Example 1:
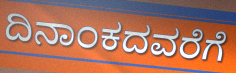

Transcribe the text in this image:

ದಿನಾಂಕದವರೆಗೆ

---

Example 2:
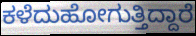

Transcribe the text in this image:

ಕಳೆದುಹೋಗುತ್ತಿದ್ದಾರೆ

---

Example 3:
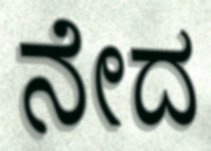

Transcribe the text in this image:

ನೇದ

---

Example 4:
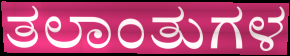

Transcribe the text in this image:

ತಲಾಂತುಗಳ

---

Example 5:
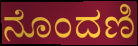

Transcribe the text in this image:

ನೊಂದಣಿ